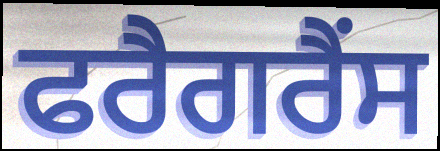
ਫਰੈਗਰੈਂਸ